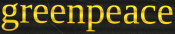
greenpeace